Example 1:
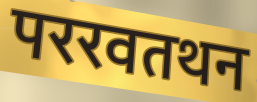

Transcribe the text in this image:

पररवतथन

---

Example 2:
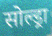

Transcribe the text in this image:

सोल्ड्रा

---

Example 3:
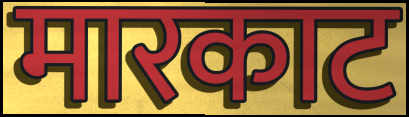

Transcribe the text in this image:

मारकाट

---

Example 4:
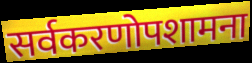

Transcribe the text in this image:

सर्वकरणोपशामना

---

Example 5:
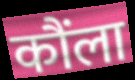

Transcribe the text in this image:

कौंला